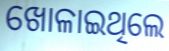
ଖୋଳାଇଥିଲେ